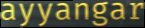
ayyangar